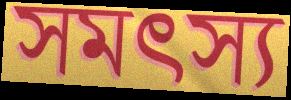
সমৎস্য